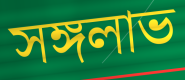
সঙ্গলাভ